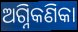
ଅଗ୍ନିକଣିକା